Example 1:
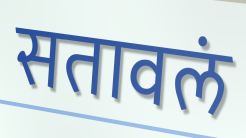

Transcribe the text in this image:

सतावलं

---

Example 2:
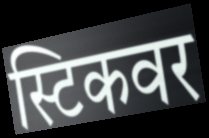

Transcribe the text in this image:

स्टिकवर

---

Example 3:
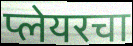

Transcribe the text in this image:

प्लेयरचा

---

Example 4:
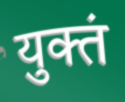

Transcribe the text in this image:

युक्तं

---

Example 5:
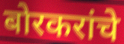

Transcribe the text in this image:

बोरकरांचे